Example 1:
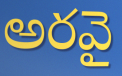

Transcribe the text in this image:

అరవై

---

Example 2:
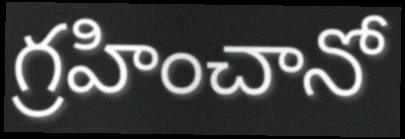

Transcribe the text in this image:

గ్రహించానో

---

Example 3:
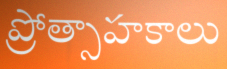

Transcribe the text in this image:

ప్రోత్సాహకాలు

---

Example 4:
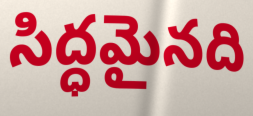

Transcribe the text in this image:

సిద్ధమైనది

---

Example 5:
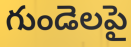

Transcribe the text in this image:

గుండెలపై